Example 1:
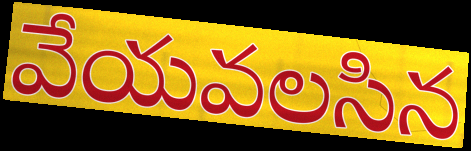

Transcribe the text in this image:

వేయవలసిన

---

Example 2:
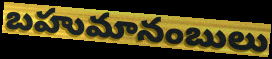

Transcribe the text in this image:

బహుమానంబులు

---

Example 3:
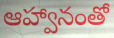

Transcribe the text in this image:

ఆహ్వానంతో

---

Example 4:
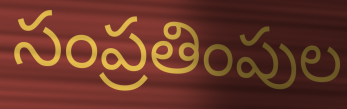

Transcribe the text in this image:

సంప్రతింపుల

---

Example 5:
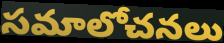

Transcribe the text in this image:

సమాలోచనలు